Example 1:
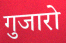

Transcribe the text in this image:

गुजारो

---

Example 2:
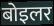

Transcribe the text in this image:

बोइलर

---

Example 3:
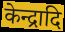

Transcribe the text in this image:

केन्द्रादि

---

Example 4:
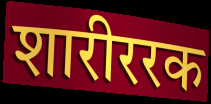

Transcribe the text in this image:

शारीररक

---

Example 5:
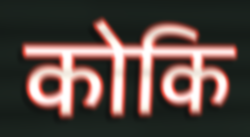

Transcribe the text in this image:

कोकि